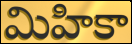
మిహికా